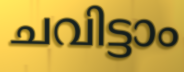
ചവിട്ടാം